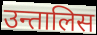
उन्तालिस